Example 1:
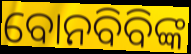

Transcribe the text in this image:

ବୋନବିବିଙ୍କ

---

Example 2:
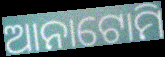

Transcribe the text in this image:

ଆନାଟୋମି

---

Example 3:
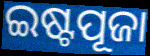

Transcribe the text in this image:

ଇଷ୍ଟପୂଜା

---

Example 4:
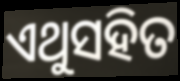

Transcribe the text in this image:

ଏଥୁସହିତ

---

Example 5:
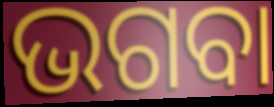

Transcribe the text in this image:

ଭଗବା